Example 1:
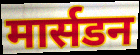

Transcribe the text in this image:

मार्सडन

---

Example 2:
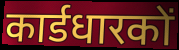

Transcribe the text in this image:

कार्डधारकों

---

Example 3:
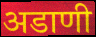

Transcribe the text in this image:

अडाणी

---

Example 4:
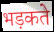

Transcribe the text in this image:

भड़कते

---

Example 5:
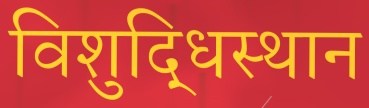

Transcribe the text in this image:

विशुद्धिस्थान